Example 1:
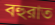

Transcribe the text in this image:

বহুরাত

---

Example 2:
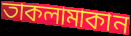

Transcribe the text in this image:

তাকলামাকান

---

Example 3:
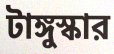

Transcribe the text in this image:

টাঙ্গুস্কার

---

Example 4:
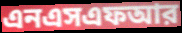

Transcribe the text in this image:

এনএসএফআর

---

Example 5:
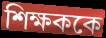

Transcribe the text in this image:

শিক্ষককে